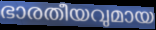
ഭാരതീയവുമായ